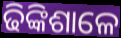
ଢିଙ୍କିଶାଳେ